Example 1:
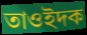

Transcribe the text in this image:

তাওইদক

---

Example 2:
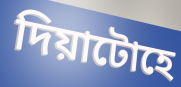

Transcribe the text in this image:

দিয়াটোহে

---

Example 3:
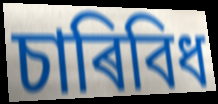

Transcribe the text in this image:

চাৰিবিধ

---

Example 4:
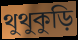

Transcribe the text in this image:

থুথুকুড়ি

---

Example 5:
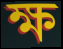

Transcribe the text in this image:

ক্ষ